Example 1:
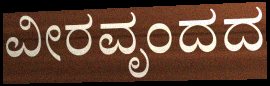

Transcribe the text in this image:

ವೀರವೃಂದದ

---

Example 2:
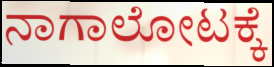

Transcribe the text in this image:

ನಾಗಾಲೋಟಕ್ಕೆ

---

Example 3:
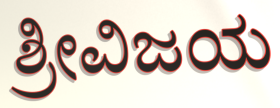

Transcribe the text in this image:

ಶ್ರೀವಿಜಯ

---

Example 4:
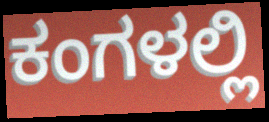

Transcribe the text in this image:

ಕಂಗಳಲ್ಲಿ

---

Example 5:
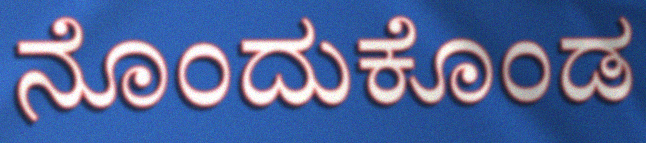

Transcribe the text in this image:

ನೊಂದುಕೊಂಡ